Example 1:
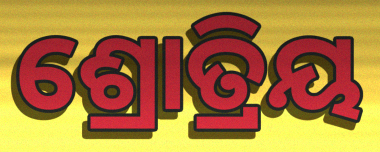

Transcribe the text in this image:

ଶ୍ରୋତ୍ରିୟ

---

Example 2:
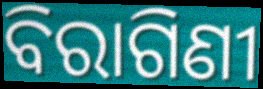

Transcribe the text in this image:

ବିରାଗିଣୀ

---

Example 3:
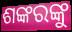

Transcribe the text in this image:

ଶଙ୍କରଙ୍କୁ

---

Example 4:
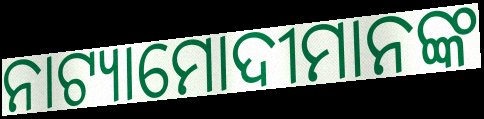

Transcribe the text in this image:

ନାଟ୍ୟାମୋଦୀମାନଙ୍କ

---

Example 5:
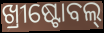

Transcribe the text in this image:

ଖ୍ରୀଷ୍ଟୋବଲ୍